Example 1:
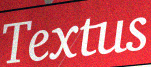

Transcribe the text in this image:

Textus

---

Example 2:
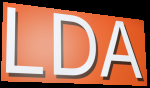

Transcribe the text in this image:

LDA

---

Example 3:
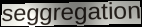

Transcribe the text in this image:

seggregation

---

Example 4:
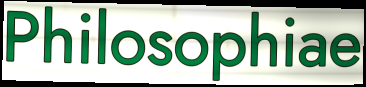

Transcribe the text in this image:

Philosophiae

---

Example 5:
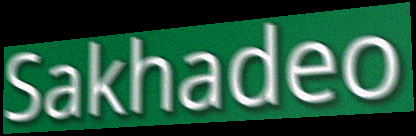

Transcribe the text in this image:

Sakhadeo